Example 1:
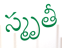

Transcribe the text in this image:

స్మృతీ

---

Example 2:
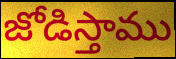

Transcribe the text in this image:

జోడిస్తాము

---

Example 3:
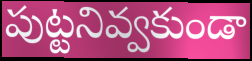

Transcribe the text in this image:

పుట్టనివ్వకుండా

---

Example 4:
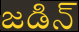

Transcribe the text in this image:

జడిన్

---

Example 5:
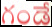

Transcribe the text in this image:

గండే